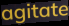
agitate